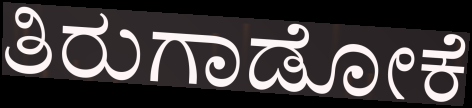
ತಿರುಗಾಡೋಕೆ